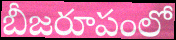
బీజరూపంలో